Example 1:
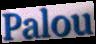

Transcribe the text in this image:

Palou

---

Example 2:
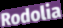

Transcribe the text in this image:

Rodolia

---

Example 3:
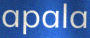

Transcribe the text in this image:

apala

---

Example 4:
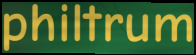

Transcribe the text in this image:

philtrum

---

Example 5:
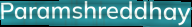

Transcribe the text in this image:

Paramshreddhay